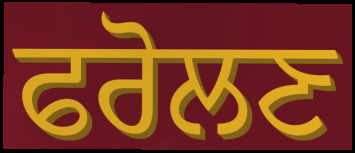
ਫਰੋਲਣ